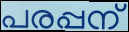
പരപ്പന്